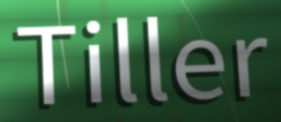
Tiller